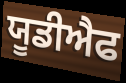
ਯੂਡੀਐਫ